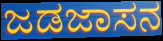
ಜಡಜಾಸನ